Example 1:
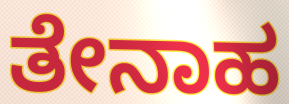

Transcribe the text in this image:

ತೇನಾಹ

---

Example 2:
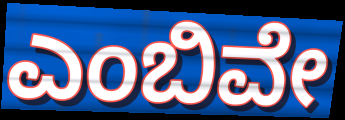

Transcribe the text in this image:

ಎಂಬಿವೇ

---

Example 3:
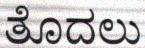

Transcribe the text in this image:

ತೊದಲು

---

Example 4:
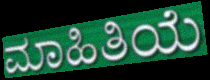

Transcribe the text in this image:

ಮಾಹಿತಿಯೆ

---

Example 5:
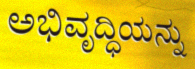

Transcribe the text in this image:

ಅಭಿವೃದ್ಧಿಯನ್ನು